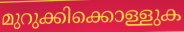
മുറുക്കിക്കൊള്ളുക